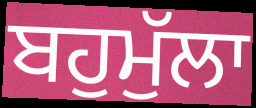
ਬਹੁਮੁੱਲਾ